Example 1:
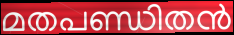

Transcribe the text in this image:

മതപണ്ഡിതൻ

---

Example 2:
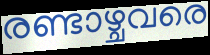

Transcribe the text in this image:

രണ്ടാഴ്ചവരെ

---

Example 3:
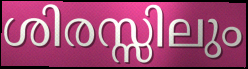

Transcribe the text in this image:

ശിരസ്സിലും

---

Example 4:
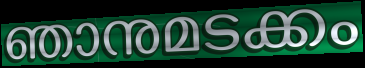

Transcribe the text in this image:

ഞാനുമടക്കം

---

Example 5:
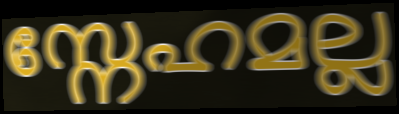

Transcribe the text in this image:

സ്നേഹമല്ല